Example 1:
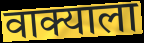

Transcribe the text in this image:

वाक्‍याला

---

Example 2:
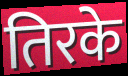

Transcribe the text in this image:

तिरके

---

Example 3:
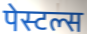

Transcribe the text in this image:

पेस्टल्स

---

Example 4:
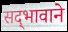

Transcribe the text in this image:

सद्‌भावाने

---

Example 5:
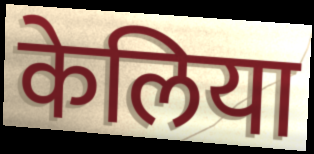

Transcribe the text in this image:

केलिया